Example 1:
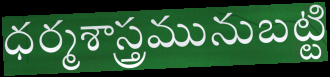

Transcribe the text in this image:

ధర్మశాస్త్రమునుబట్టి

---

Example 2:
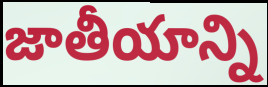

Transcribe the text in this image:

జాతీయాన్ని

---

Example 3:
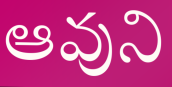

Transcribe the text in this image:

ఆవుని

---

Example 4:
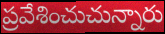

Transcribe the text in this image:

ప్రవేశించుచున్నారు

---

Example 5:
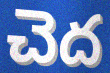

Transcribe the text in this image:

చెద